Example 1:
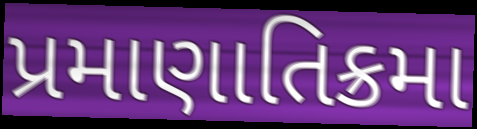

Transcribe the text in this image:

પ્રમાણાતિક્રમા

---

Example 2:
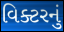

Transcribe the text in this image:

વિક્ટરનું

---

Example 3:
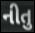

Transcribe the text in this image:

નીતુ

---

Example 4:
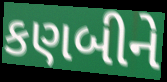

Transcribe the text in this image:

કણબીને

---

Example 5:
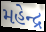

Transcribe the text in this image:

મહેન્દ્ર